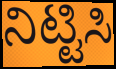
ನಿಟ್ಟಿಸಿ